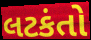
લટકંતો